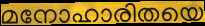
മനോഹാരിതയെ